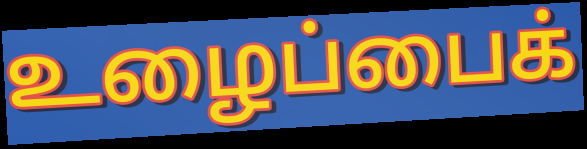
உழைப்பைக்